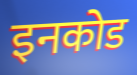
इनकोड